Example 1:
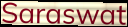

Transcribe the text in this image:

Saraswat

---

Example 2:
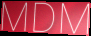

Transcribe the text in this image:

MDM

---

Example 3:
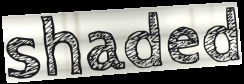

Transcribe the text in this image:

shaded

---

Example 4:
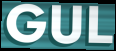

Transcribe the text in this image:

GUL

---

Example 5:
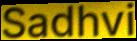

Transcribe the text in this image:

Sadhvi